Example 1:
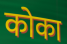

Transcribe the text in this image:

कोका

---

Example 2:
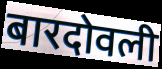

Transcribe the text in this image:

बारदोवली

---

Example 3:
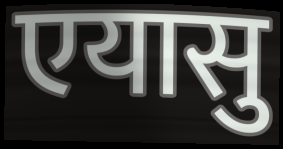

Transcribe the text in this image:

एयासु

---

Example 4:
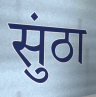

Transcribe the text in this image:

सुंठा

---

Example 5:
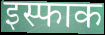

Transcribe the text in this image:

इस्फाक